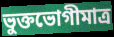
ভুক্তভোগীমাত্র